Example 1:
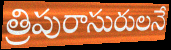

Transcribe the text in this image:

త్రిపురాసురులనే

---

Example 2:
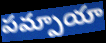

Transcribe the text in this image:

పమ్పాయా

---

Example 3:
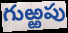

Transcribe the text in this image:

గుఱ్ఱపు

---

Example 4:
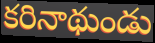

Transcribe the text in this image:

కరినాథుండు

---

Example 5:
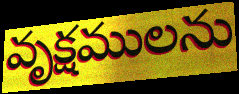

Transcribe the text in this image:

వృక్షములను